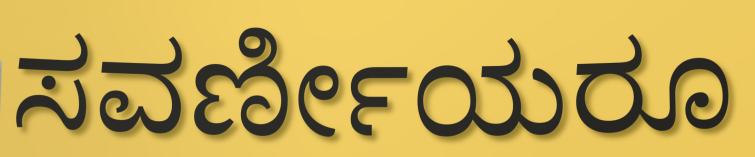
ಸವರ್ಣೀಯರೂ